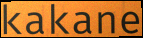
kakane